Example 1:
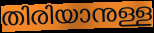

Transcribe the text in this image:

തിരിയാനുള്ള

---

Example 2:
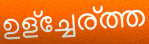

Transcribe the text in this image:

ഉള്ച്ചേര്ത്ത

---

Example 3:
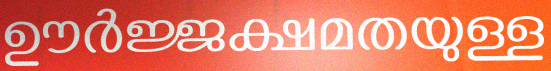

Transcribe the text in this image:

ഊർജ്ജക്ഷമതയുള്ള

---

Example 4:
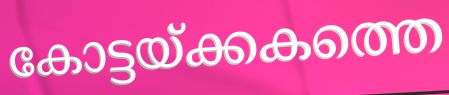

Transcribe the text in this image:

കോട്ടയ്ക്കകത്തെ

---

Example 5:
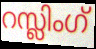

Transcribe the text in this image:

റസ്ലിംഗ്